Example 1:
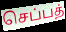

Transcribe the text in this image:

செப்பத்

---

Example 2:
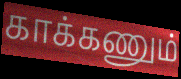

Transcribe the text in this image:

காக்கணும்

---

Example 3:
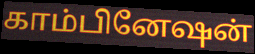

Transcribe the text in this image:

காம்பினேஷன்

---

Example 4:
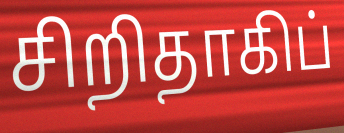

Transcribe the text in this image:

சிறிதாகிப்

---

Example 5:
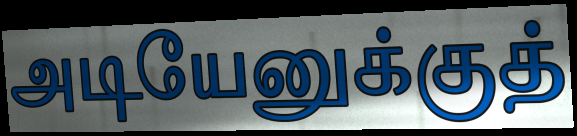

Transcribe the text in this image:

அடியேனுக்குத்